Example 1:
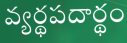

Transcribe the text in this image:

వ్యర్థపదార్థం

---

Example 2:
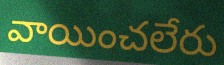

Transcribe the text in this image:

వాయించలేరు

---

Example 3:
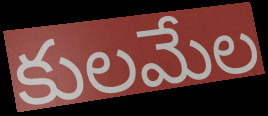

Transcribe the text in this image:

కులమేల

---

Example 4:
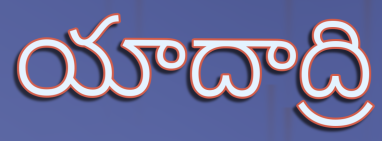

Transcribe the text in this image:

యాదాద్రి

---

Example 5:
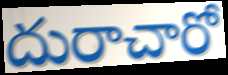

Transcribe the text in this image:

దురాచారో